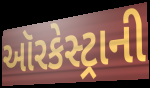
ઑરકેસ્ટ્રાની